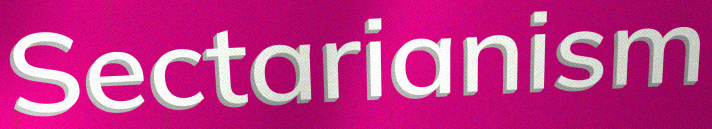
Sectarianism